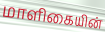
மாளிகையின்